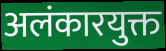
अलंकारयुक्त